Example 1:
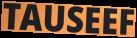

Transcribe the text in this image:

TAUSEEF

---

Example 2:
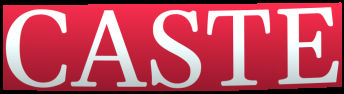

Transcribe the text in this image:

CASTE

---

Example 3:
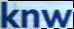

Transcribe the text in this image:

knw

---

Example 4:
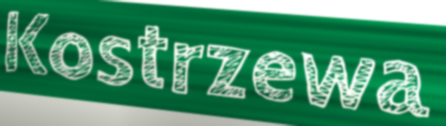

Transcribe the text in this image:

Kostrzewa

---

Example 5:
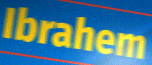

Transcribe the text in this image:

Ibrahem